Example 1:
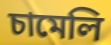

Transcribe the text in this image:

চামেলি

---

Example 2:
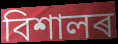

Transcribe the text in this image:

বিশালৰ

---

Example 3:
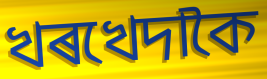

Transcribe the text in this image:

খৰখেদাকৈ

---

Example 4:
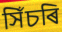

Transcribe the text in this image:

সিঁচৰি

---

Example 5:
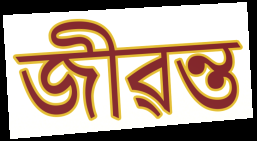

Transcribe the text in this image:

জীৱন্ত